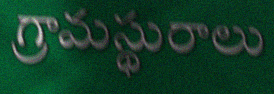
గ్రామస్థురాలు